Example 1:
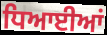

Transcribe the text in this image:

ਧਿਆਈਆਂ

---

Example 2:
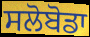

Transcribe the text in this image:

ਸਲੋਬੋਡਾ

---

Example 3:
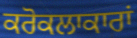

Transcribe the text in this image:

ਕਰੋਕਲਾਕਾਰਾਂ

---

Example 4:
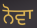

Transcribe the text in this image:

ਨੋਵਾ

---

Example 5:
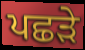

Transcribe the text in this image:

ਪਛੜੇ